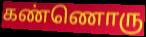
கண்ணொரு